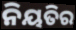
ନିୟତିର